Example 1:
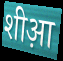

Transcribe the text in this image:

शीआ़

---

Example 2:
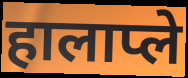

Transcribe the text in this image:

हालाप्ले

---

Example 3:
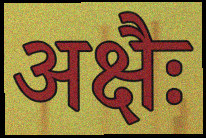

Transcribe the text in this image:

अक्षैः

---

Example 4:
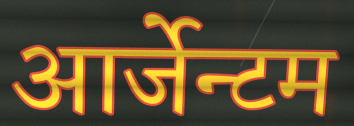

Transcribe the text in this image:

आर्जेन्टम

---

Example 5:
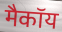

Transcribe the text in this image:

मैकॉय